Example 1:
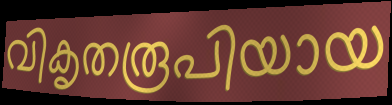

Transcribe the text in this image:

വികൃതരൂപിയായ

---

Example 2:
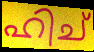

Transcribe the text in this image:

ഹിച്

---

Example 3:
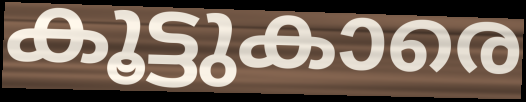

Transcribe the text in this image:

കൂട്ടുകാരെ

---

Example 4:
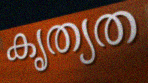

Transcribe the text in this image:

കൃത്യത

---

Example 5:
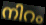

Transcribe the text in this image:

നിറം